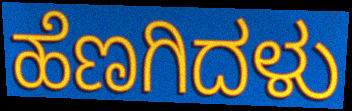
ಹೆಣಗಿದಳು